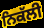
ਨਿਕੱਲੀ